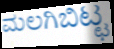
ಮಲಗಿಬಿಟ್ಟ